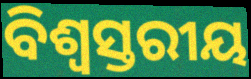
ବିଶ୍ବସ୍ତରୀୟ